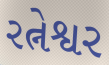
રત્નેશ્વર